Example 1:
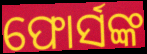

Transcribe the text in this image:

ଫୋର୍ସଙ୍କ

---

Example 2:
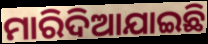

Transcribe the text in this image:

ମାରିଦିଆଯାଇଛି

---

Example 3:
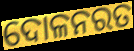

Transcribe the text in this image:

ଦୋଳନରତ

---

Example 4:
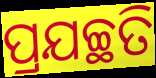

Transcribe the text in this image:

ପ୍ରଯଚ୍ଛତି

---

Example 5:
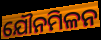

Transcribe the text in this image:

ଯୌନମିଳନ